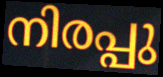
നിരപ്പു